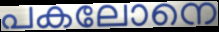
പകലോനെ